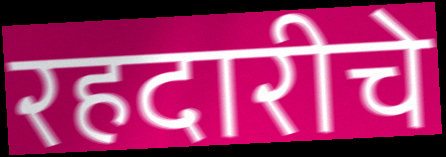
रहदारीचे